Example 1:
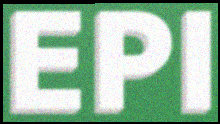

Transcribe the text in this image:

EPI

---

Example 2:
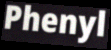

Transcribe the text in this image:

Phenyl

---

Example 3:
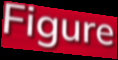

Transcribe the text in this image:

Figure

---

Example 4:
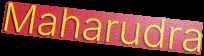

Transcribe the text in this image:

Maharudra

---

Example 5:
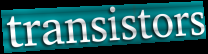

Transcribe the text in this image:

transistors